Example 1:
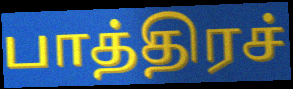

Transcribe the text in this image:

பாத்திரச்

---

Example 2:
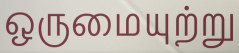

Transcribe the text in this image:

ஒருமையுற்று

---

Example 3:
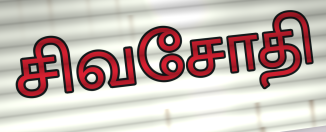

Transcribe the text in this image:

சிவசோதி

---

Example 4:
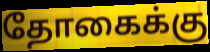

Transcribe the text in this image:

தோகைக்கு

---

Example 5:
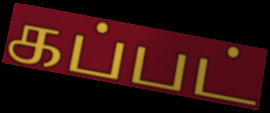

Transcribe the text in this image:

கப்பட்